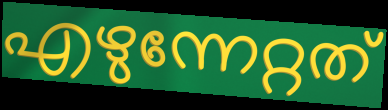
എഴുന്നേറ്റത്